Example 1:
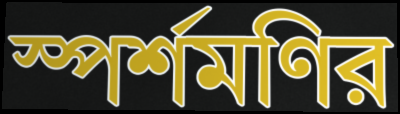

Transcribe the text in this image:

স্পর্শমণির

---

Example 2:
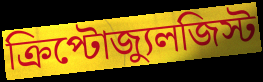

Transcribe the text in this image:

ক্রিপ্টোজ্যুলজিস্ট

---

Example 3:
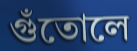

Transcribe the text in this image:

গুঁতোলে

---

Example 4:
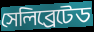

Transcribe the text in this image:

সেলিব্রেটেড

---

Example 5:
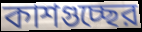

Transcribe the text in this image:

কাশগুচ্ছের